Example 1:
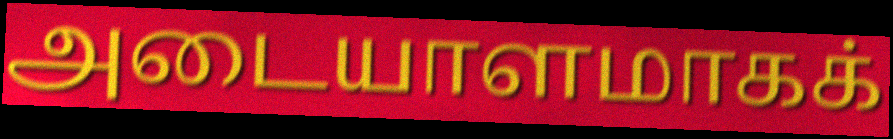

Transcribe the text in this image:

அடையாளமாகக்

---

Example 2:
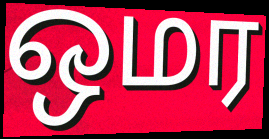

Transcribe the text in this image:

ஒமர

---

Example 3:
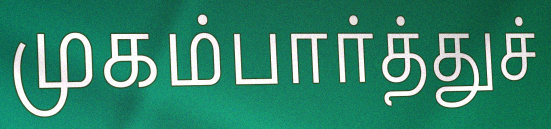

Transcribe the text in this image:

முகம்பார்த்துச்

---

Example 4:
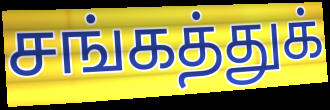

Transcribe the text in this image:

சங்கத்துக்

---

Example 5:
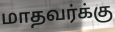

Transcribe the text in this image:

மாதவர்க்கு